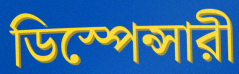
ডিস্পেন্সারী